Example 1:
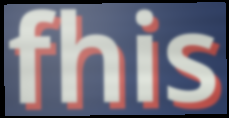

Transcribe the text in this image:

fhis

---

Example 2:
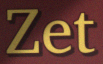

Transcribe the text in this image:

Zet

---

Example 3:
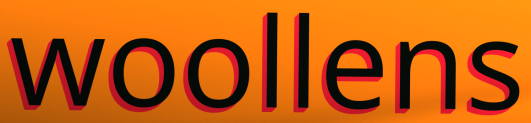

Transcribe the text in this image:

woollens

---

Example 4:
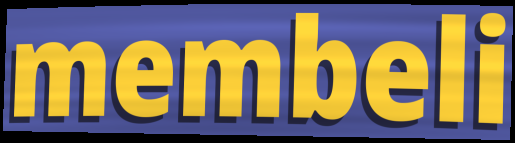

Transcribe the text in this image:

membeli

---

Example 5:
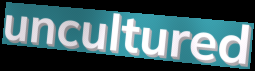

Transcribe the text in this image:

uncultured